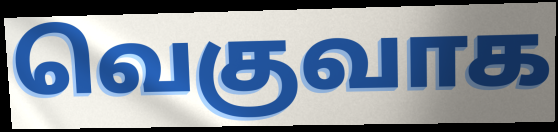
வெகுவாக